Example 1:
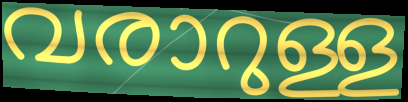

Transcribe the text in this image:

വരാറുള്ള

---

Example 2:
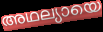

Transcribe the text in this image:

അഥല്യായെ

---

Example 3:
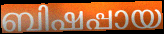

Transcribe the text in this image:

ബിഷപ്പായ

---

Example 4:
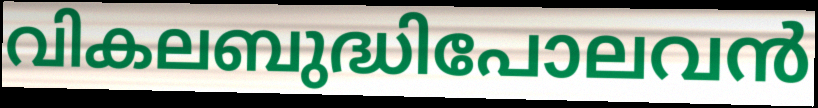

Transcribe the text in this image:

വികലബുദ്ധിപോലവൻ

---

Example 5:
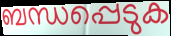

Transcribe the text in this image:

ബന്ധപ്പെടുക